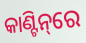
କାଣ୍ଟିନ୍‌ରେ